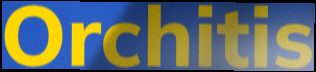
Orchitis